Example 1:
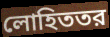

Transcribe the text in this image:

লোহিততর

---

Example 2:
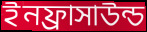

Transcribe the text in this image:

ইনফ্রাসাউন্ড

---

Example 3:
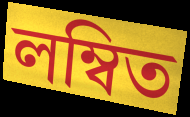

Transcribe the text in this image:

লম্বিত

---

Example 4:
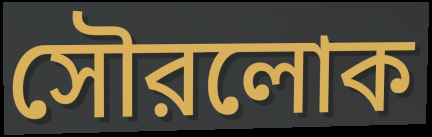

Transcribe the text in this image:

সৌরলোক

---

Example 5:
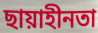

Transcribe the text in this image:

ছায়াহীনতা